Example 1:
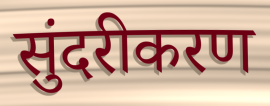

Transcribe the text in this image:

सुंदरीकरण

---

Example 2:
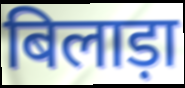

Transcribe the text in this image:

बिलाड़ा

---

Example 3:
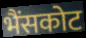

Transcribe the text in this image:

भैंसकोट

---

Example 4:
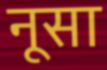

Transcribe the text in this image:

नूसा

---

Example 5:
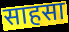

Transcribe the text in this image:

साहसा